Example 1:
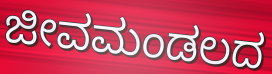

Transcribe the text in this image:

ಜೀವಮಂಡಲದ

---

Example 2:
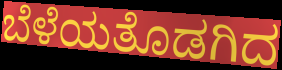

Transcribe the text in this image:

ಬೆಳೆಯತೊಡಗಿದ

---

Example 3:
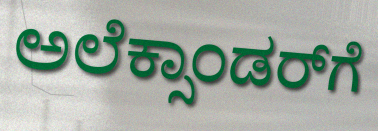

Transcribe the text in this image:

ಅಲೆಕ್ಸಾಂಡರ್‌ಗೆ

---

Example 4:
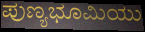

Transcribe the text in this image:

ಪುಣ್ಯಭೂಮಿಯು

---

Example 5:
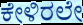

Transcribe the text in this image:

ಕೇಳಿರಲೇ